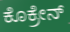
ಕೊಕ್ರೇನ್